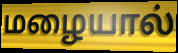
மழையால்